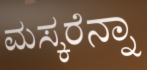
ಮಸ್ಕರೆನ್ನಾ